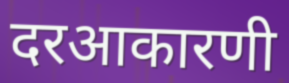
दरआकारणी